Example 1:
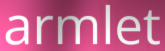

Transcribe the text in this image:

armlet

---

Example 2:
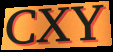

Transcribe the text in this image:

CXY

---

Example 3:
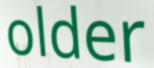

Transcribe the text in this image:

older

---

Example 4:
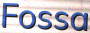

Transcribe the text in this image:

Fossa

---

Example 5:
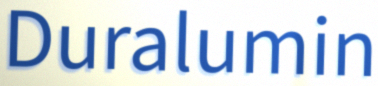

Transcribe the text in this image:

Duralumin